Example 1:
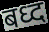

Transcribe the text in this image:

बध्द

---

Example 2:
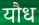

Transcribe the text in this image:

यौध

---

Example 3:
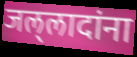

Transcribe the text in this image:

जल्लादांना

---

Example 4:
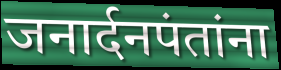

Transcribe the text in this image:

जनार्दनपंतांना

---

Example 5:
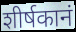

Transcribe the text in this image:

शीर्षकानं